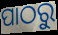
ପାଠରୁ